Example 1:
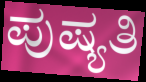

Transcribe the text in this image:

ಪುಷ್ಯತಿ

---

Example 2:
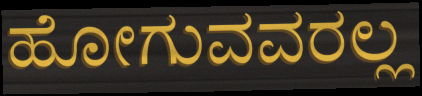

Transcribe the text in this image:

ಹೋಗುವವರಲ್ಲ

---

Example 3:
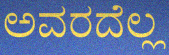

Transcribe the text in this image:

ಅವರದೆಲ್ಲ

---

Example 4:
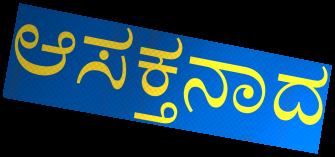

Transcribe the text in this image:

ಆಸಕ್ತನಾದ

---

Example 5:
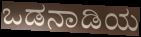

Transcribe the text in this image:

ಒಡನಾಡಿಯ